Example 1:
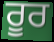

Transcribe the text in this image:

ਰੂਰ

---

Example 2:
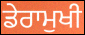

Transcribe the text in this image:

ਡੇਰਾਮੁਖੀ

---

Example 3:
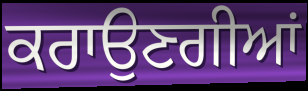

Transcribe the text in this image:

ਕਰਾਉਣਗੀਆਂ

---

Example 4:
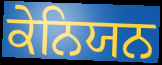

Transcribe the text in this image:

ਕੇਨਿਯਨ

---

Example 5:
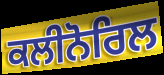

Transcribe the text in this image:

ਕਲੀਨੋਰਿਲ